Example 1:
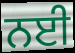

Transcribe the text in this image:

ਨਈ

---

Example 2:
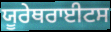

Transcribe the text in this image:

ਯੂਰੇਥਰਾਈਟਸ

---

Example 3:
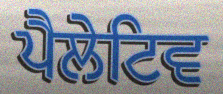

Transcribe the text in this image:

ਪੈਲੇਟਿਵ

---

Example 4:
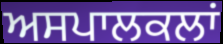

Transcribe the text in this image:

ਅਸਪਾਲਕਲਾਂ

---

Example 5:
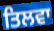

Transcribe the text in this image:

ਤਿਲਵਾ